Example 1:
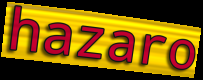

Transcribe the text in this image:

hazaro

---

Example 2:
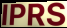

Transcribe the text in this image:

IPRS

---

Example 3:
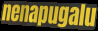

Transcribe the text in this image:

nenapugalu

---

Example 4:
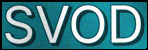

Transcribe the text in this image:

SVOD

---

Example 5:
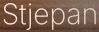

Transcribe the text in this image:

Stjepan